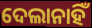
ଦେଲାନାହିଁ